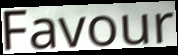
Favour